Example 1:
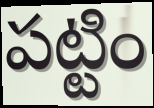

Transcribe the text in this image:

పట్టిం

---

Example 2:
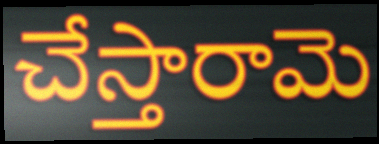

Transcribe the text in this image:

చేస్తారామె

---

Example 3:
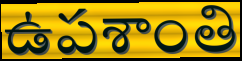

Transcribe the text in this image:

ఉపశాంతి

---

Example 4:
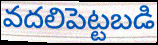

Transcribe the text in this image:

వదలిపెట్టబడి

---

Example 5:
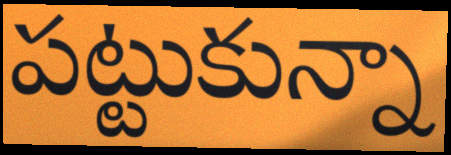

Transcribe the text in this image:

పట్టుకున్నా